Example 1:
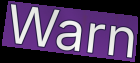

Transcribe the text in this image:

Warn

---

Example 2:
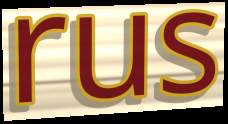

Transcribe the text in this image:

rus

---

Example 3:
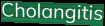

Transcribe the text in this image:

Cholangitis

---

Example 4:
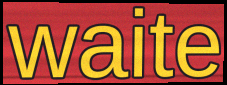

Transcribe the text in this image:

waite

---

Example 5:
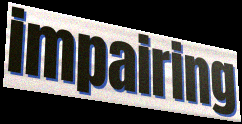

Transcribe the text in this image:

impairing